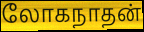
லோகநாதன்